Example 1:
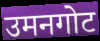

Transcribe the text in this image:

उमनगोट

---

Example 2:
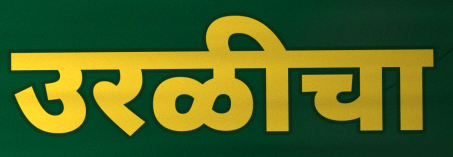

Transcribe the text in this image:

उरळीचा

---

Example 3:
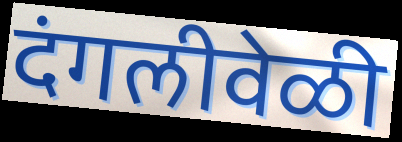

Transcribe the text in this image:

दंगलीवेळी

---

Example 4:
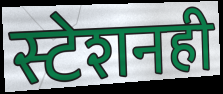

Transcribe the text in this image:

स्टेशनही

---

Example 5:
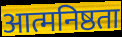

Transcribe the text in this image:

आत्मनिष्ठता